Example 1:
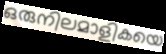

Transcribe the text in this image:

ഒരുനിലമാളികയെ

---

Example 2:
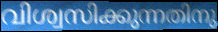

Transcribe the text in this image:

വിശ്വസിക്കുന്നതിനു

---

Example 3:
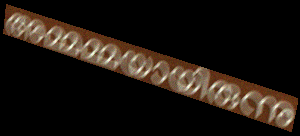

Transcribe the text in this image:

അമ്മമ്മയായിരുന്നു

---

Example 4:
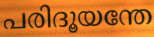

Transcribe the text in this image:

പരിദൂയന്തേ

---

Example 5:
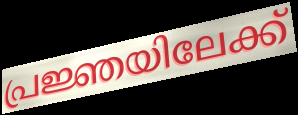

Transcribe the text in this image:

പ്രജ്ഞയിലേക്ക്